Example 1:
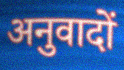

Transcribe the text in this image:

अनुवादों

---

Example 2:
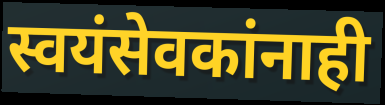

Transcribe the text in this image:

स्वयंसेवकांनाही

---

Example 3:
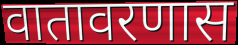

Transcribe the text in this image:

वातावरणास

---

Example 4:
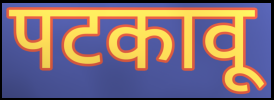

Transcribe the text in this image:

पटकावू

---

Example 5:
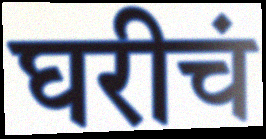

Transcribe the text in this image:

घरीचं